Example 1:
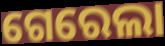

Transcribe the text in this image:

ଗେରେଲା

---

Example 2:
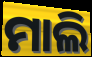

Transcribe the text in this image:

ମାଲି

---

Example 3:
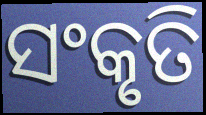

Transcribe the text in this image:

ସଂକୃତି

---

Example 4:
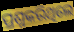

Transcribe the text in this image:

ପ୍ରଶ୍ନକରିଥିଲେ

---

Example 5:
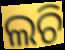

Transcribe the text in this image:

ଲଚି